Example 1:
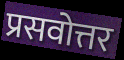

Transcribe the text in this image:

प्रसवोत्तर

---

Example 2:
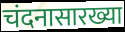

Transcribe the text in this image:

चंदनासारख्या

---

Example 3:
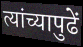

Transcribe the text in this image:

त्यांच्यापुढें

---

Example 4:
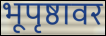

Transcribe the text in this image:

भूपृष्ठावर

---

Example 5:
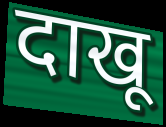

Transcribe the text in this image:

दाखू